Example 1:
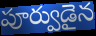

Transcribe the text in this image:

పూర్వుడైన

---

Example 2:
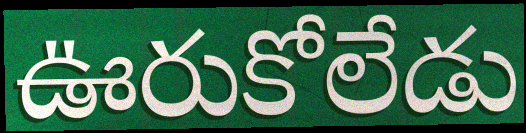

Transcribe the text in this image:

ఊరుకోలేడు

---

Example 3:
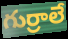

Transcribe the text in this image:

గుర్రాలే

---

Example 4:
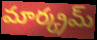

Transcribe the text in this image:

మార్క్రమ్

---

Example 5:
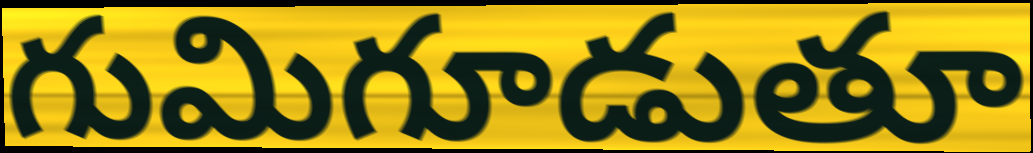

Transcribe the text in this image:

గుమిగూడుతూ